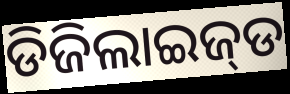
ଡିଜିଲାଇଜ୍‌ଡ